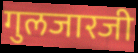
गुलजारजी